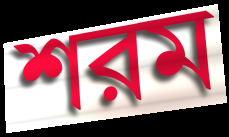
শরম